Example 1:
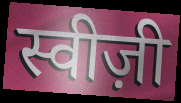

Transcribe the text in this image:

स्वीज़ी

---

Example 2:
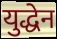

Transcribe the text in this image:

युद्धेन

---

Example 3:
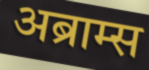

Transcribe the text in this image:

अब्राम्स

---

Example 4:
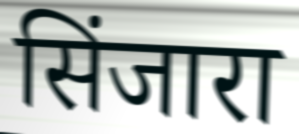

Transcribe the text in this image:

सिंजारा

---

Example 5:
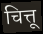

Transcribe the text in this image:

चित्तू